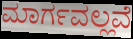
ಮಾರ್ಗವಲ್ಲವೆ